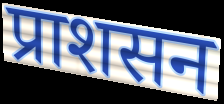
प्राशसन